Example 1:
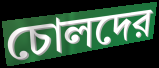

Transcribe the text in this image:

চোলদের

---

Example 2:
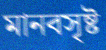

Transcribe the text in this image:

মানবসৃষ্ট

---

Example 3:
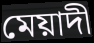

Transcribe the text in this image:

মেয়াদী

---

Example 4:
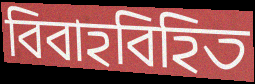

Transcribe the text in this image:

বিবাহবিহিত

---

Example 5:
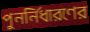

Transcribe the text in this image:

পুনর্নিধারণের